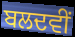
ਬਲਦਵੀਂ